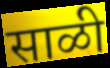
साळी